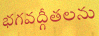
భగవద్గీతలను